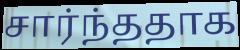
சார்ந்ததாக